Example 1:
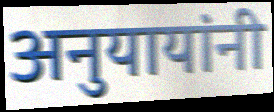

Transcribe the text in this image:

अनुयायांनी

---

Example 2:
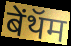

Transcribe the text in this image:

बेंथॅम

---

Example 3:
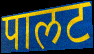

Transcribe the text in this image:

पालट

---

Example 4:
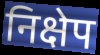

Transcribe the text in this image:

निक्षेप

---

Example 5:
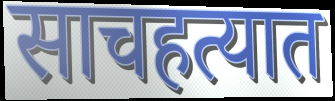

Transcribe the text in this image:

साचहत्यात